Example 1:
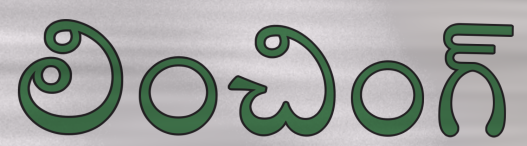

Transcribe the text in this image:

లించింగ్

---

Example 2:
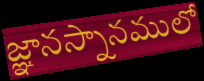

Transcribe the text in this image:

జ్ఞానస్నానములో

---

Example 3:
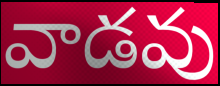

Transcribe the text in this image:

వాడవు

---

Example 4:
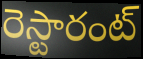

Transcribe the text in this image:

రెస్టారంట్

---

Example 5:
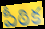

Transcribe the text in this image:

పీఠిక